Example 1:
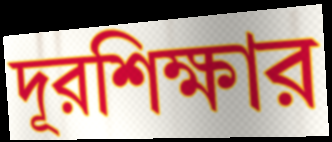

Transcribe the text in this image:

দূরশিক্ষার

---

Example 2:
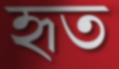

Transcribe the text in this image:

হৃত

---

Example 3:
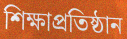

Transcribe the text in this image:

শিক্ষাপ্রতিষ্ঠান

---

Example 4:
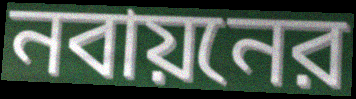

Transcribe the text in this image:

নবায়নের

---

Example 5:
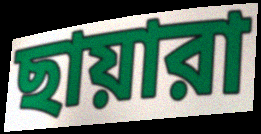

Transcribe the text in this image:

ছায়ারা